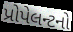
પ્રોપેલન્ટનો